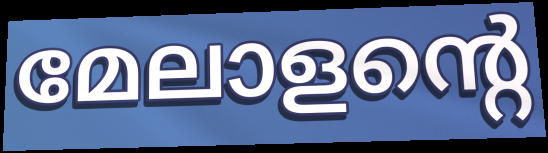
മേലാളന്റെ